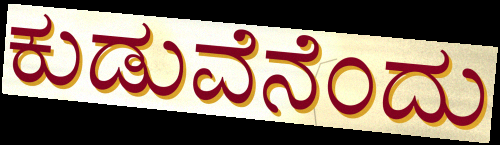
ಕುಡುವೆನೆಂದು